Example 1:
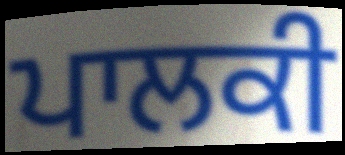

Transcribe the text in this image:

ਪਾਲਕੀ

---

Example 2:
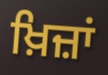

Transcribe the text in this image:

ਖ਼ਿਜ਼ਾਂ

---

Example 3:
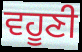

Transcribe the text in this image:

ਵਹੂਣੀ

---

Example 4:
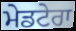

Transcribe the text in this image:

ਮੇਡਟੇਰਾ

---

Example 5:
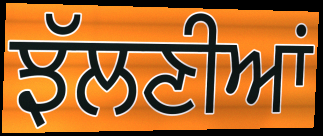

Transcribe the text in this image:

ਝੱਲਣੀਆਂ